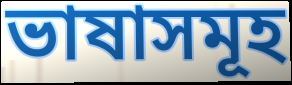
ভাষাসমূহ